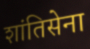
शांतिसेना